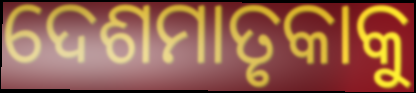
ଦେଶମାତୃକାକୁ